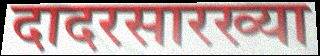
दादरसारख्या